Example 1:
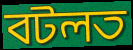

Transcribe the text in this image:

বটলত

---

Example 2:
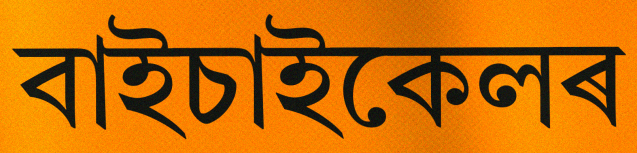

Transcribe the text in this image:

বাইচাইকেলৰ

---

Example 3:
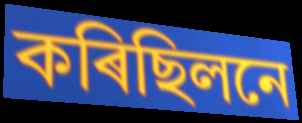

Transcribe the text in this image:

কৰিছিলনে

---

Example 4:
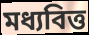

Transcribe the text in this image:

মধ্যবিত্ত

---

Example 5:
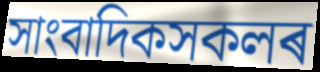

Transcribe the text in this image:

সাংবাদিকসকলৰ